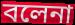
বলেনা